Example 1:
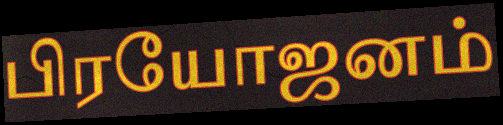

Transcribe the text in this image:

பிரயோஜனம்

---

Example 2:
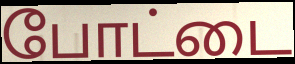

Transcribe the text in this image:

போட்டை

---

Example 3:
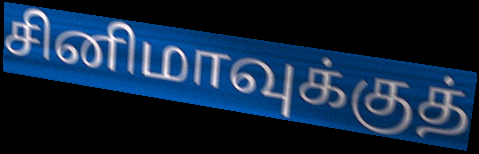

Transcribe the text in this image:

சினிமாவுக்குத்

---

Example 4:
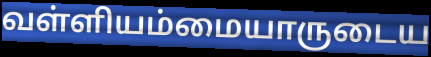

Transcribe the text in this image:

வள்ளியம்மையாருடைய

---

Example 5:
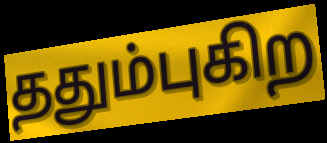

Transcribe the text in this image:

ததும்புகிற